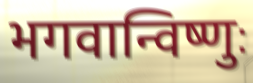
भगवान्विष्णुः